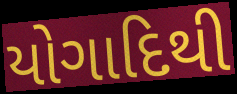
યોગાદિથી